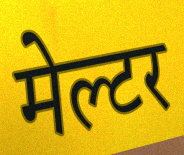
मेल्टर